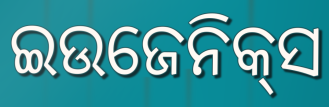
ଇଉଜେନିକ୍‌ସ